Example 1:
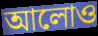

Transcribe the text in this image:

আলোও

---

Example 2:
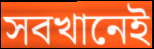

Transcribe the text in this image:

সবখানেই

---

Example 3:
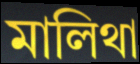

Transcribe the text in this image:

মালিথা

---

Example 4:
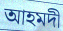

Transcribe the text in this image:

আহমদী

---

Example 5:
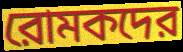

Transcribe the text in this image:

রোমকদের